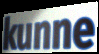
kunne